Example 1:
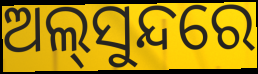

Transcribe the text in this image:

ଅଲ୍‌ସୁନ୍ଦରେ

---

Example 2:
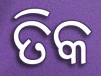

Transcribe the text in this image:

ତିକ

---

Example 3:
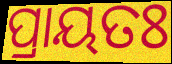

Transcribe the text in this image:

ପ୍ରାୟତଃ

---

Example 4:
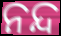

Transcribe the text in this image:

ନନ୍ଦ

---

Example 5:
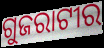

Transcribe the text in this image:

ଗୁଜରାଟୀର